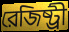
রেজিষ্ট্রী